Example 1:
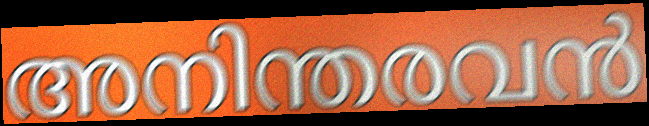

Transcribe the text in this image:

അനിന്തരവൻ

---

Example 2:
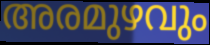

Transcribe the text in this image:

അരമുഴവും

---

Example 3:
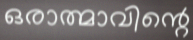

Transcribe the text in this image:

ഒരാത്മാവിന്റെ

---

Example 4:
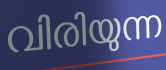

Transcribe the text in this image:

വിരിയുന്ന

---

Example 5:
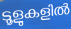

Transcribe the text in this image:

ടൂളുകളിൽ